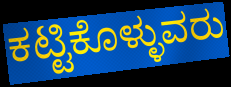
ಕಟ್ಟಿಕೊಳ್ಳುವರು